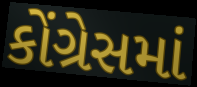
કોંગ્રેસમાં